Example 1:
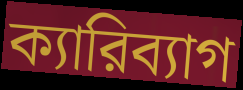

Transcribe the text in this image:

ক্যারিব্যাগ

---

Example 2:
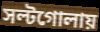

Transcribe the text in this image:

সল্টগোলায়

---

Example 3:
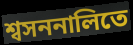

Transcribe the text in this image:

শ্বসননালিতে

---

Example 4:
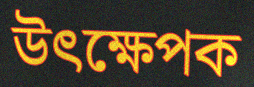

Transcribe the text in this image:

উৎক্ষেপক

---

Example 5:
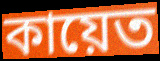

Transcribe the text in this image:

কায়েত